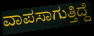
ವಾಪಸಾಗುತ್ತಿದ್ದೆ